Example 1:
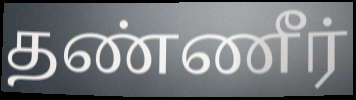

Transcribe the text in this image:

தண்ணீர்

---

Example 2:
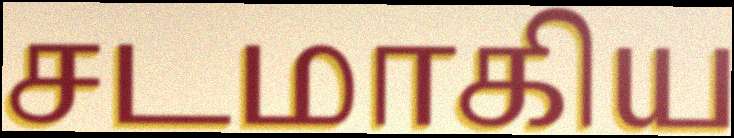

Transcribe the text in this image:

சடமாகிய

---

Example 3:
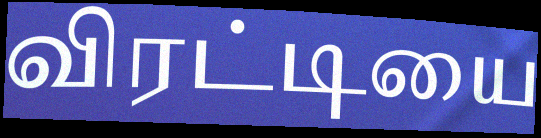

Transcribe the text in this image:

விரட்டியை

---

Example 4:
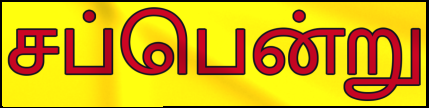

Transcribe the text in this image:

சப்பென்று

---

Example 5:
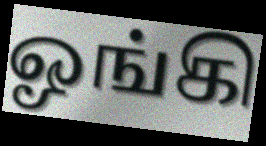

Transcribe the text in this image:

ஓங்கி